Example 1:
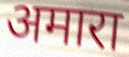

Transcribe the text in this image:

अमारा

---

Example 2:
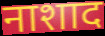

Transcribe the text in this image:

नाशाद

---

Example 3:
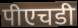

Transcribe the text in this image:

पीएचडी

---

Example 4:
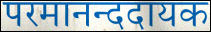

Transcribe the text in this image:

परमानन्ददायक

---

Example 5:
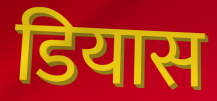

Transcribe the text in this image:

डियास